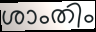
ശാംതിം